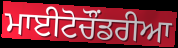
ਮਾਈਟੋਚੌਂਡਰੀਆ